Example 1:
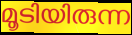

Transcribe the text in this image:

മൂടിയിരുന്ന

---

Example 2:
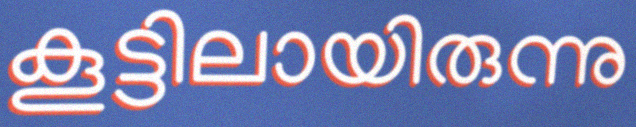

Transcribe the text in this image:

കൂട്ടിലായിരുന്നു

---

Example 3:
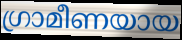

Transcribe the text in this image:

ഗ്രാമീണയായ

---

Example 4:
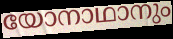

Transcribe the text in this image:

യോനാഥാനും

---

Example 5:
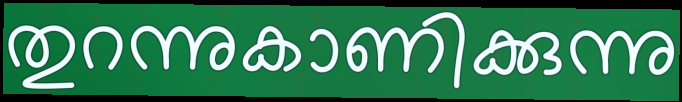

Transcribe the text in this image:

തുറന്നുകാണിക്കുന്നു